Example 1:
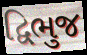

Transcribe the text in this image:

દ્વિભુજ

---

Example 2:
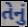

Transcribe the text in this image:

તેનું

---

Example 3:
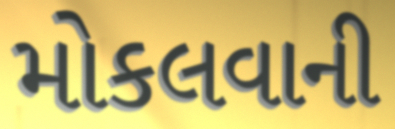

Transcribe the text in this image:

મોકલવાની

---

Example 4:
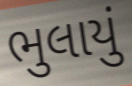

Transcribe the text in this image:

ભુલાયું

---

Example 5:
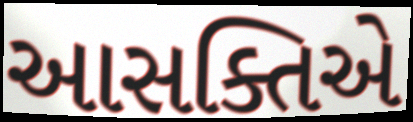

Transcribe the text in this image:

આસક્તિએ